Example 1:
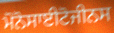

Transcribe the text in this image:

ਮੋਨੋਸਾਈਟੋਜੀਨਸ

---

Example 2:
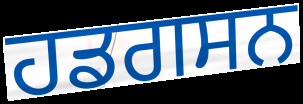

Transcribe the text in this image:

ਹਡਗਸਨ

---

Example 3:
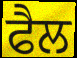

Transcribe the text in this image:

ਫੈਲ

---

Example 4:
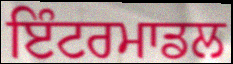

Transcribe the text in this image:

ਇੰਟਰਮਾਡਲ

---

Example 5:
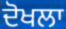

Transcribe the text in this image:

ਦੋਖਲਾ